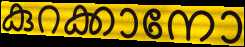
കുറക്കാനോ